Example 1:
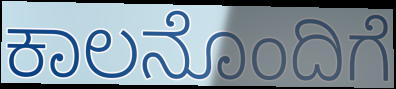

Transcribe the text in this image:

ಕಾಲನೊಂದಿಗೆ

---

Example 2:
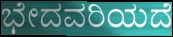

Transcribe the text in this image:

ಭೇದವರಿಯದೆ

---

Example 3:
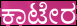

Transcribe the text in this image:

ಕಾಟೇರ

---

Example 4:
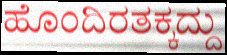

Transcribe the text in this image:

ಹೊಂದಿರತಕ್ಕದ್ದು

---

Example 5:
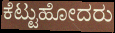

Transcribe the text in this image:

ಕೆಟ್ಟುಹೋದರು